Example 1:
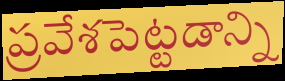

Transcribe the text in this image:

ప్రవేశపెట్టడాన్ని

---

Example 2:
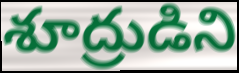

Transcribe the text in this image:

శూద్రుడిని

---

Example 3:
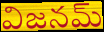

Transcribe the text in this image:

విజనమ్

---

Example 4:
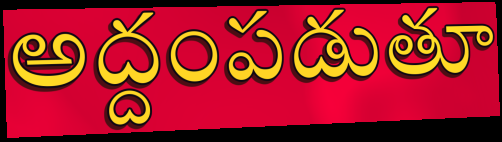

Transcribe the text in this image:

అద్దంపడుతూ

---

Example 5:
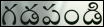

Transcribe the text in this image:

గడపండి